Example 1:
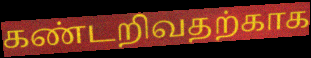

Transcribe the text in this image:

கண்டறிவதற்காக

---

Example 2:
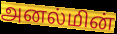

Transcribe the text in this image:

அனல்மின்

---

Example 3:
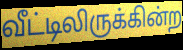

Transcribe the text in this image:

வீட்டிலிருக்கின்ற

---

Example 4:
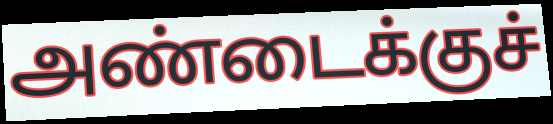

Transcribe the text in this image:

அண்டைக்குச்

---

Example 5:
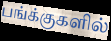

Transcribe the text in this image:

பங்க்குகளில்